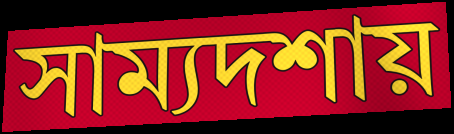
সাম্যদশায়